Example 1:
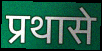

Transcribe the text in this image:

प्रथासे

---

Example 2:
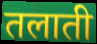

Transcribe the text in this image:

तलाती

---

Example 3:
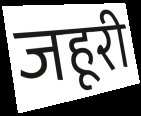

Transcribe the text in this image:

जहूरी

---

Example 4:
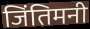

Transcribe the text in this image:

जिंतिमनी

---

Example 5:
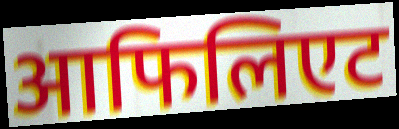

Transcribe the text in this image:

आफिलिएट